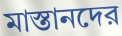
মাস্তানদের